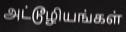
அட்டூழியங்கள்